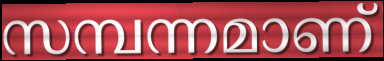
സമ്പന്നമാണ്